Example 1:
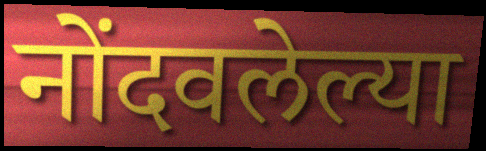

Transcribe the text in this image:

नोंदवलेल्या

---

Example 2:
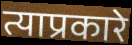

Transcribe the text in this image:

त्याप्रकारे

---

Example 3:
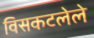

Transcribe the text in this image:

विसकटलेले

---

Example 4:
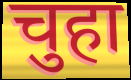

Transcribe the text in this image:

चुहा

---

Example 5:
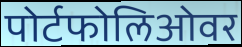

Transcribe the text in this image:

पोर्टफोलिओवर